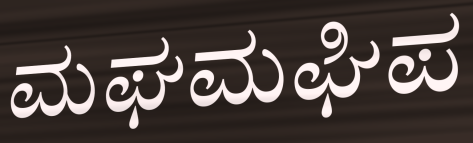
ಮಘಮಘಿಪ